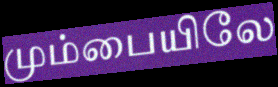
மும்பையிலே